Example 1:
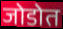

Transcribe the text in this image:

जोडोत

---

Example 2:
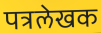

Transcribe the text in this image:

पत्रलेखक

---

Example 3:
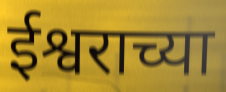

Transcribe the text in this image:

ईश्वराच्या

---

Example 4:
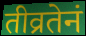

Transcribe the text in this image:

तीव्रतेनं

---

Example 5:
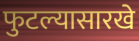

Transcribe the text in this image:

फुटल्यासारखे